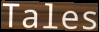
Tales